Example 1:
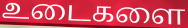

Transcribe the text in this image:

உடைகளை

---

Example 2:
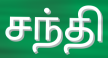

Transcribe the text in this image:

சந்தி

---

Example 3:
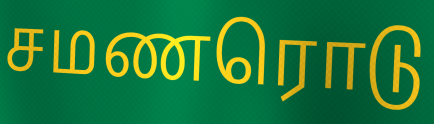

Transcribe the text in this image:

சமணரொடு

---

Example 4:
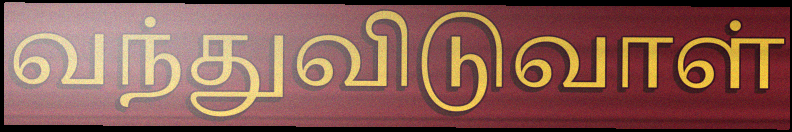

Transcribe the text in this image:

வந்துவிடுவாள்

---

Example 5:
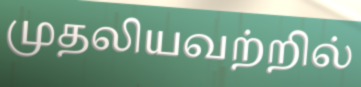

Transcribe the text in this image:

முதலியவற்றில்